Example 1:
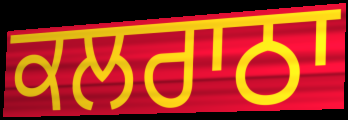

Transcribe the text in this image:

ਕਲਰਾਠਾ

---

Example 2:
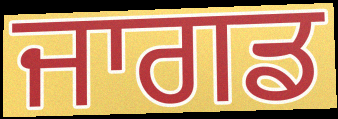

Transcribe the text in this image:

ਜਾਗਡ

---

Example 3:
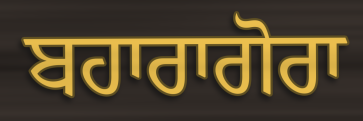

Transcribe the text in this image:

ਬਹਾਰਾਗੋਰਾ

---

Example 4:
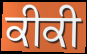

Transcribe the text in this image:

ਕੀਕੀ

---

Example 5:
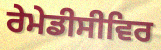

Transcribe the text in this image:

ਰੇਮੇਡੀਸੀਵਿਰ